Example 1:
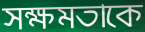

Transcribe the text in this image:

সক্ষমতাকে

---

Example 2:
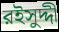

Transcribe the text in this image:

রইসুদ্দী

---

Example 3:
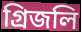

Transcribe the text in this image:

গ্রিজলি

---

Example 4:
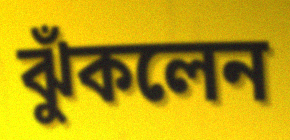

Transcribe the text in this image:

ঝুঁকলেন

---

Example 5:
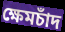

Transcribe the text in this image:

ক্ষেমচাঁদ